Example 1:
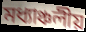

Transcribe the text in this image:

মধ্যাঞ্চলীয়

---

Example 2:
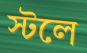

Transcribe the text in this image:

স্টলে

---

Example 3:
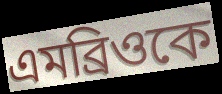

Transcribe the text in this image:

এমব্রিওকে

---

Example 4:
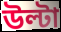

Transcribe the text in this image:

উল্টা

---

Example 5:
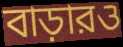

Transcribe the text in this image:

বাড়ারও